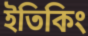
ইতিকিং